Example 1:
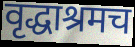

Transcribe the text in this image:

वृद्धाश्रमच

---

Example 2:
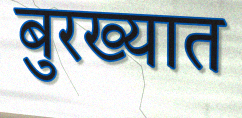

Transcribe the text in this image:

बुरख्यात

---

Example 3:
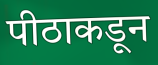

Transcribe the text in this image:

पीठाकडून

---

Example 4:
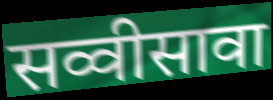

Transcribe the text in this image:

सव्वीसावा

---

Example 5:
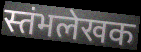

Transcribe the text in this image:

स्तंभलेखक